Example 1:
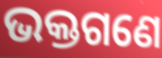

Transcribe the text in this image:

ଭକ୍ତଗଣେ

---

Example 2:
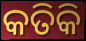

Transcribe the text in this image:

କତିକି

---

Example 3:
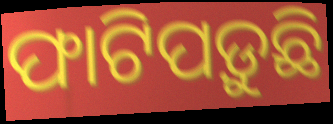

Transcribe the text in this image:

ଫାଟିପଡ଼ୁଛି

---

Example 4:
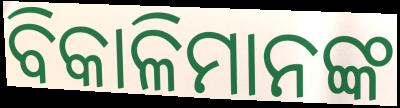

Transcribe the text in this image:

ବିକାଳିମାନଙ୍କ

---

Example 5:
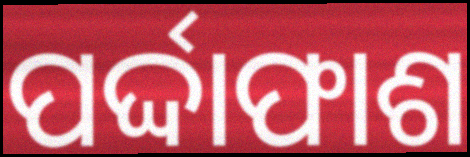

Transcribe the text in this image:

ପର୍ଦ୍ଦାଫାଶ